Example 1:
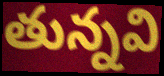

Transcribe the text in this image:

తున్నవి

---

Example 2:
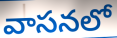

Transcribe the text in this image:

వాసనలో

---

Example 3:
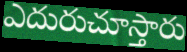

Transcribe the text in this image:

ఎదురుచూస్తారు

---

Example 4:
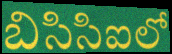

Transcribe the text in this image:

బిసిసిఐలో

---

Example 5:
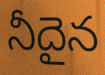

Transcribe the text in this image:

నీదైన